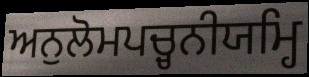
ਅਨੁਲੋਮਪਚ੍ਚਨੀਯਮ੍ਹਿ